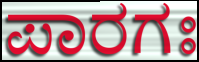
ಪಾರಗಃ